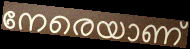
നേരെയാണ്